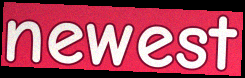
newest